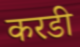
करडी